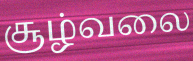
சூழ்வலை